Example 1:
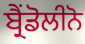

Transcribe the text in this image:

ਬ੍ਰੈਂਡੋਲੀਨੋ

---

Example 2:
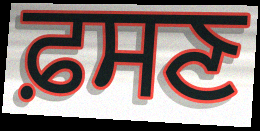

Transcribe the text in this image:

ਫ਼ਸਣ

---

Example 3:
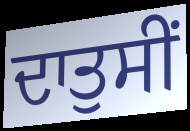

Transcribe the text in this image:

ਦਾਤੁਸੀਂ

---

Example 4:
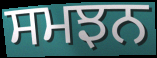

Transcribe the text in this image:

ਸਮਝਨ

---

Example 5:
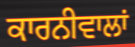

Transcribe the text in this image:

ਕਾਰਨੀਵਾਲਾਂ